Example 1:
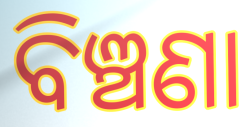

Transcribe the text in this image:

ବିଞ୍ଚଣା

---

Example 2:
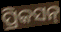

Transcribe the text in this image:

ପ୍ରିକସନ୍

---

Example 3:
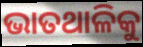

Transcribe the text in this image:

ଭାତଥାଳିକୁ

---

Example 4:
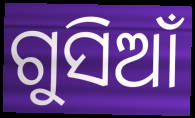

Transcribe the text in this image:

ଗୁସିଆଁ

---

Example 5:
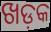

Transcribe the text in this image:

ଖଡ଼କ